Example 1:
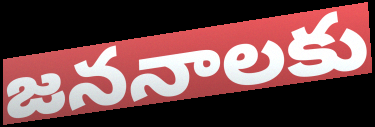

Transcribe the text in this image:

జననాలకు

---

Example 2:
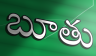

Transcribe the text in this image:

బూతు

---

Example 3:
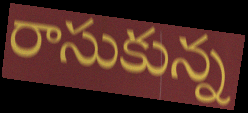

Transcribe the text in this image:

రాసుకున్న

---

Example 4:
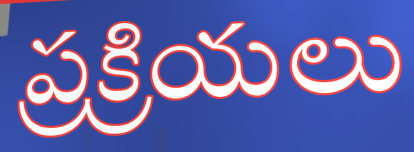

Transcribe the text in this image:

ప్రక్రియలు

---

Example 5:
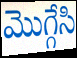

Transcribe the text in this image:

మొగ్గేసి